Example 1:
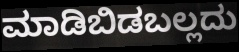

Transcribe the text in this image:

ಮಾಡಿಬಿಡಬಲ್ಲದು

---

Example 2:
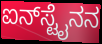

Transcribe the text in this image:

ಐನ್‌ಸ್ಟೈನನ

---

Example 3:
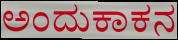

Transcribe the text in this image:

ಅಂದುಕಾಕನ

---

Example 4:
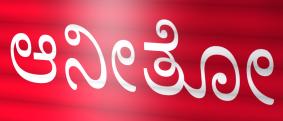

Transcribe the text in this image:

ಆನೀತೋ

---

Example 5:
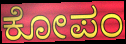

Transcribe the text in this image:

ಕೋಪಂ